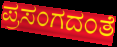
ಪ್ರಸಂಗದಂತೆ